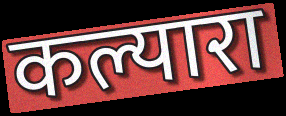
कल्यारा